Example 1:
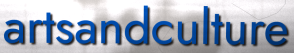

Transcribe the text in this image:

artsandculture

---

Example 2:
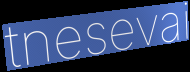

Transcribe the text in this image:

tnesevai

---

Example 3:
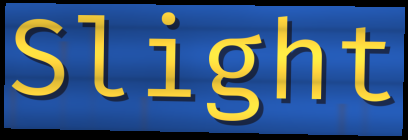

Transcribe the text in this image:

Slight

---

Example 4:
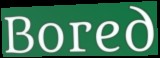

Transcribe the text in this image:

Bored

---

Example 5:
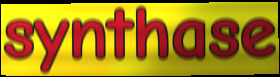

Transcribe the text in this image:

synthase